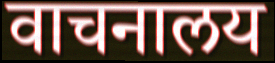
वाचनालय